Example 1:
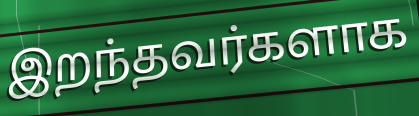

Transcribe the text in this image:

இறந்தவர்களாக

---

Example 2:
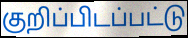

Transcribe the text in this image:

குறிப்பிடப்பட்டு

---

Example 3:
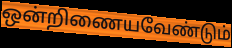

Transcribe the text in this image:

ஒன்றிணையவேண்டும்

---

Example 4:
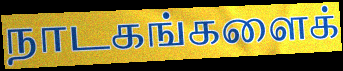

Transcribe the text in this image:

நாடகங்களைக்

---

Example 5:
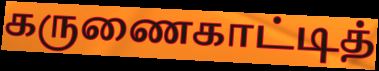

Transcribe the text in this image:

கருணைகாட்டித்